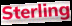
Sterling